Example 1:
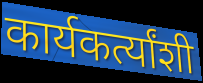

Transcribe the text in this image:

कार्यकर्त्यांशी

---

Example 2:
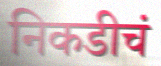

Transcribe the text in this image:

निकडीचं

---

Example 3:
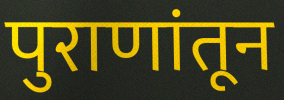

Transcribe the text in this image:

पुराणांतून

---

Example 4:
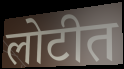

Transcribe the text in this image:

लोटीत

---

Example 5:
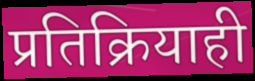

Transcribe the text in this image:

प्रतिक्रियाही